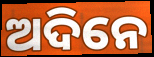
ଅଦିନେ